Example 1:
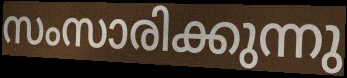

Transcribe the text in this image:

സംസാരിക്കുന്നു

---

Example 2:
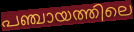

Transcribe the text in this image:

പഞ്ചായത്തിലെ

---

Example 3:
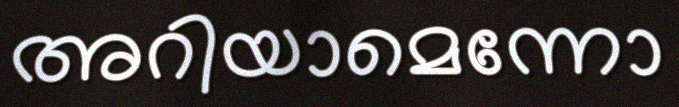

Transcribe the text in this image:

അറിയാമെന്നോ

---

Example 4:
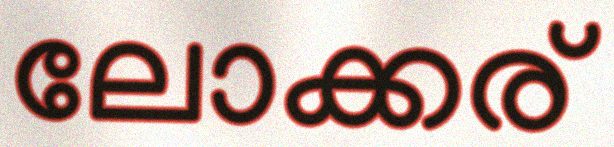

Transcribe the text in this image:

ലോക്കര്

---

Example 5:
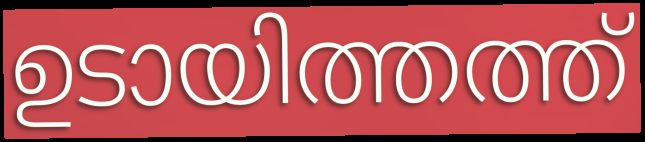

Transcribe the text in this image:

ഉടായിത്തത്ത്